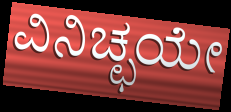
ವಿನಿಚ್ಛಯೇ